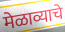
मेळाव्याचे